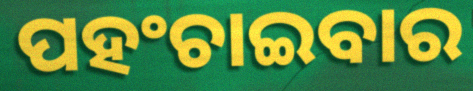
ପହଂଚାଇବାର